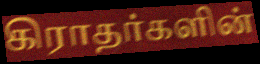
கிராதர்களின்